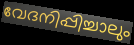
വേദനിപ്പിച്ചാലും